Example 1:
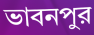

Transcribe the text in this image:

ভাবনপুর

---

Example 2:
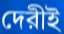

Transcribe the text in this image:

দেরীই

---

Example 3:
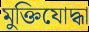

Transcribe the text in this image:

মুক্তিযোদ্ধা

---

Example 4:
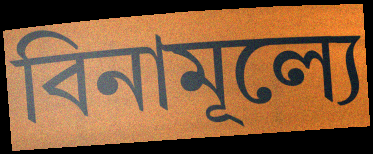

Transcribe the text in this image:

বিনামূল্যে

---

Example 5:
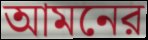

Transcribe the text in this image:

আমনের